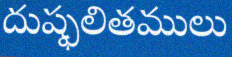
దుష్ఫలితములు